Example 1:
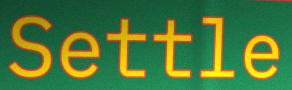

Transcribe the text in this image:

Settle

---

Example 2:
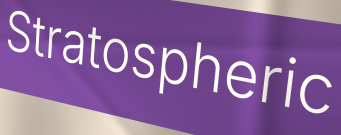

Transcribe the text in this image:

Stratospheric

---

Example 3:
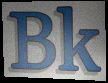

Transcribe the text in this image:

Bk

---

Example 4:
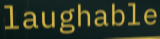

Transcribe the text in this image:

laughable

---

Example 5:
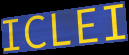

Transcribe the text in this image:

ICLEI